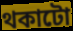
থকাটো